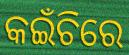
କଇଁଚିରେ